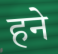
हने